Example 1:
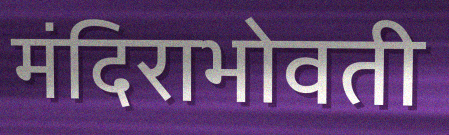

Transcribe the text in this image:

मंदिराभोवती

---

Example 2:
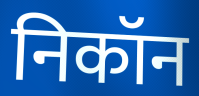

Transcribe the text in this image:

निकॉन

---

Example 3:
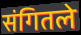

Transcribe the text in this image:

संगितले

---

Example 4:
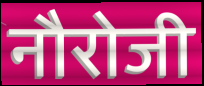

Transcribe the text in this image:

नौरोजी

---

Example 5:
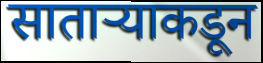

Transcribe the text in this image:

साताऱ्याकडून